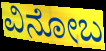
ವಿನೋಬ